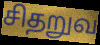
சிதறுவ